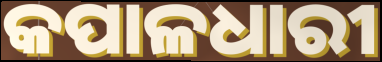
କପାଳଧାରୀ